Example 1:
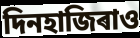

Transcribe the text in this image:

দিনহাজিৰাও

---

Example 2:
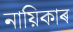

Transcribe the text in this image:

নায়িকাৰ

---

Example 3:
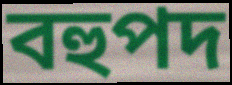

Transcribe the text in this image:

বহুপদ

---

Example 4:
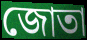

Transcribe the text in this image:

জোতা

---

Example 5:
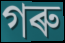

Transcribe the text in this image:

গৰু